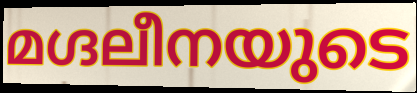
മഗ്ദലീനയുടെ